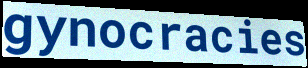
gynocracies